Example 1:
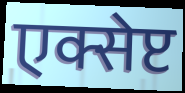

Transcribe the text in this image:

एक्सेप्ट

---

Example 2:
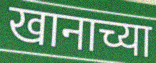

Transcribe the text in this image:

खानाच्या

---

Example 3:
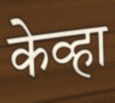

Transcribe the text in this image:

केव्हा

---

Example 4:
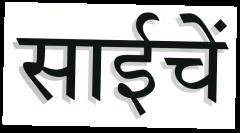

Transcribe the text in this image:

साईचें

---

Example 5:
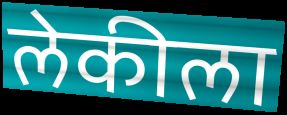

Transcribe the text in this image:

लेकीला